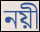
নয়ী